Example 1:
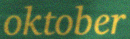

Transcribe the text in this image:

oktober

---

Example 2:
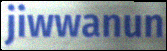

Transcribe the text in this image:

jiwwanun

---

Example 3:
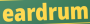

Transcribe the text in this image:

eardrum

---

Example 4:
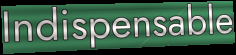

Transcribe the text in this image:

Indispensable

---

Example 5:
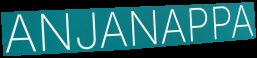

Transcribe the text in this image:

ANJANAPPA